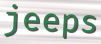
jeeps